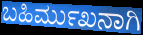
ಬಹಿರ್ಮುಖನಾಗಿ